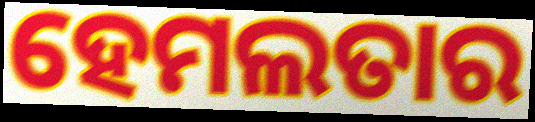
ହେମଲତାର